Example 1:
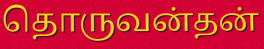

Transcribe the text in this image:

தொருவன்தன்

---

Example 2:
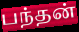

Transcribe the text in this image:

பந்தன்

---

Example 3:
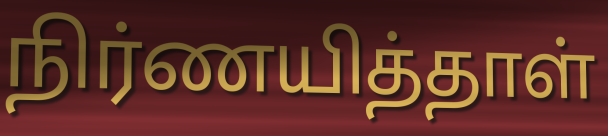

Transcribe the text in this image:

நிர்ணயித்தாள்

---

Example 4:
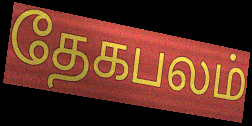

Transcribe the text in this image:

தேகபலம்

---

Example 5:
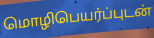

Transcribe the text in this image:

மொழிபெயர்ப்புடன்